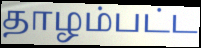
தாழம்பட்ட